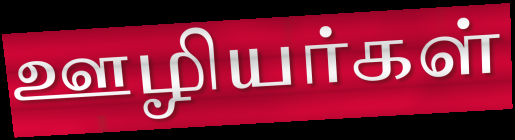
ஊழியர்கள்